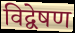
विद्वेषण